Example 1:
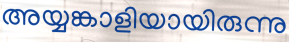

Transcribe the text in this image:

അയ്യങ്കാളിയായിരുന്നു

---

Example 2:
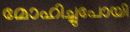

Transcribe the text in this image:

മോഹിച്ചുപോയി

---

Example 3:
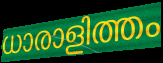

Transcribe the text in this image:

ധാരാളിത്തം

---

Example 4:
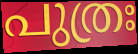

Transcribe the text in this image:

പുത്രഃ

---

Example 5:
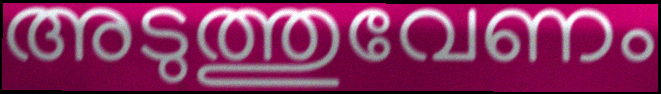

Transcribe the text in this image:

അടുത്തുവേണം